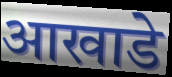
आखाडे